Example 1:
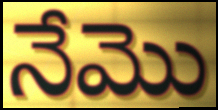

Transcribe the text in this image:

నేమొ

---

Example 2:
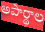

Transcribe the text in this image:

అపార్థాల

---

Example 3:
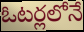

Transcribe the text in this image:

ఓటర్లలోనే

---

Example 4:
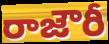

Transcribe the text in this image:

రాజౌరీ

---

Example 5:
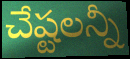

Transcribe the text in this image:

చేష్టలన్నీ